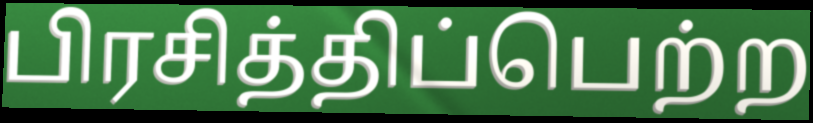
பிரசித்திப்பெற்ற